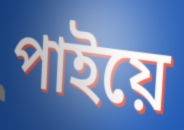
পাইয়ে